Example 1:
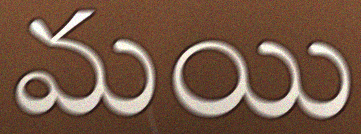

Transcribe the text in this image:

మయి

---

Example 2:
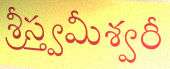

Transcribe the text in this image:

శ్రీస్త్వమీశ్వరీ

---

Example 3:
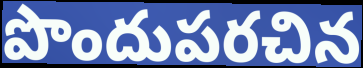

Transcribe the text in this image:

పొందుపరచిన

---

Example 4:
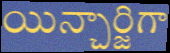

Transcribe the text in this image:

యిన్చార్జిగా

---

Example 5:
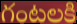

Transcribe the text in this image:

గంటలకి